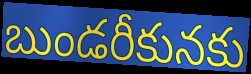
బుండరీకునకు